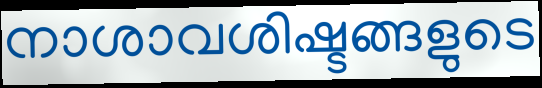
നാശാവശിഷ്ടങ്ങളുടെ